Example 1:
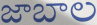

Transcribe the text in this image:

జాబాల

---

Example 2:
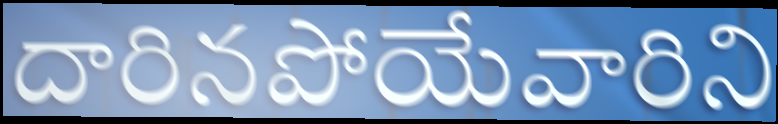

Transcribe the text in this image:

దారినపోయేవారిని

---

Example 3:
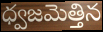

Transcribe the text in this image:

ధ్వజమెత్తిన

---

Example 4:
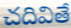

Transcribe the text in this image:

చదివితే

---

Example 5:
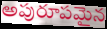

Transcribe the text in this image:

అపురూపమైన